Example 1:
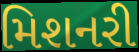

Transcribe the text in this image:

મિશનરી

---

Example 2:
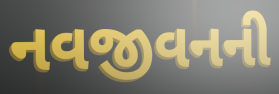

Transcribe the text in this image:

નવજીવનની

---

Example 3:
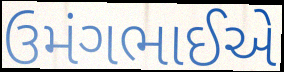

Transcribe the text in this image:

ઉમંગભાઈએ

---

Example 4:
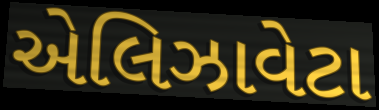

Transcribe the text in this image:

એલિઝાવેટા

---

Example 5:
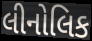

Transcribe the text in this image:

લીનોલિક